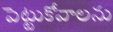
పెట్టుకోవాలను